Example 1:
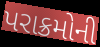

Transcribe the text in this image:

પરાક્રમોની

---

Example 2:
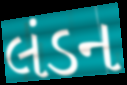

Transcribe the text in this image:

લંડન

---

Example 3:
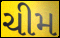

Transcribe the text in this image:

ચીમ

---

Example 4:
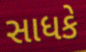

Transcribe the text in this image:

સાધકે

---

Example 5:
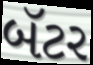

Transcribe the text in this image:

બૅટર